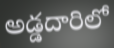
అడ్డదారిలో